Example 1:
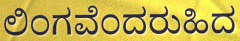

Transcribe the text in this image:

ಲಿಂಗವೆಂದರುಹಿದ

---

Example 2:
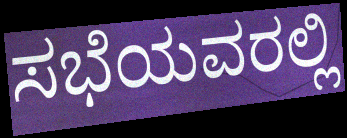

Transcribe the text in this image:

ಸಭೆಯವರಲ್ಲಿ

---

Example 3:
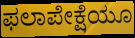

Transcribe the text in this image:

ಫಲಾಪೇಕ್ಷೆಯೂ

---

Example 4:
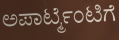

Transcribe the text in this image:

ಅಪಾರ್ಟ್ಮೆಂಟಿಗೆ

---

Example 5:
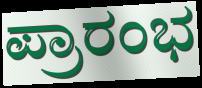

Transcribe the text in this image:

ಪ್ರಾರಂಭ